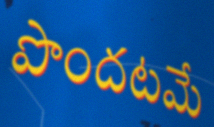
పొందటమే